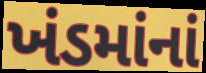
ખંડમાંનાં